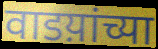
वाडय़ांच्या